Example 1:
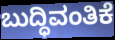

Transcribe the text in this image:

ಬುದ್ಧಿವಂತಿಕೆ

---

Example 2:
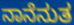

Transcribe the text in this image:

ನಾನೆನುತ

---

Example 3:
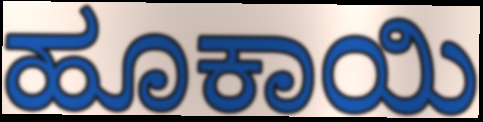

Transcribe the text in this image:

ಹೂಕಾಯಿ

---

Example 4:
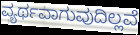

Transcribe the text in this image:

ವ್ಯರ್ಥವಾಗುವುದಿಲ್ಲವೆ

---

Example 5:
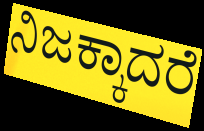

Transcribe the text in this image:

ನಿಜಕ್ಕಾದರೆ